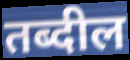
तब्दील